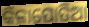
କିଳାପୋତିଆ